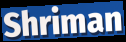
Shriman